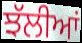
ਝੱਲੀਆਂ